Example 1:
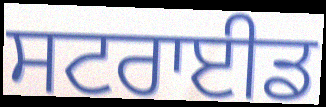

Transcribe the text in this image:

ਸਟਰਾਈਡ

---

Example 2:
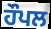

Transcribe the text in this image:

ਹੌਪਲ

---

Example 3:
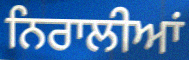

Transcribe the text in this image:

ਨਿਰਾਲੀਆਂ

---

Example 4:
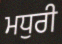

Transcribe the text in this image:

ਮਧੁਰੀ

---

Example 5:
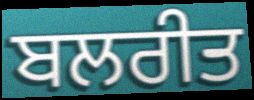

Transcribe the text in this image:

ਬਲਰੀਤ